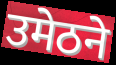
उमेठने